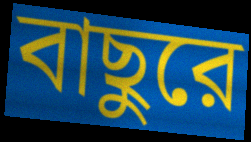
বাছুরে